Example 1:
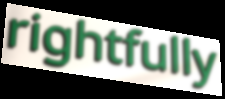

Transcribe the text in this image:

rightfully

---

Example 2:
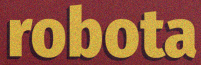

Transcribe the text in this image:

robota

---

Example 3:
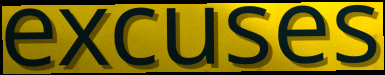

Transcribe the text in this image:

excuses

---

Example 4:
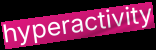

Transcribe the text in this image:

hyperactivity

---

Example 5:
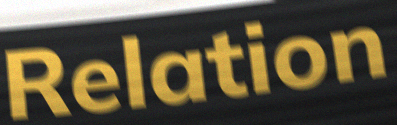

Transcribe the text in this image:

Relation